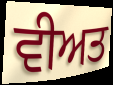
ਵੀਅਤ